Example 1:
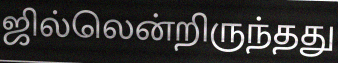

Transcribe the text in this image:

ஜில்லென்றிருந்தது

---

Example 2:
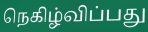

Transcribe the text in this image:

நெகிழ்விப்பது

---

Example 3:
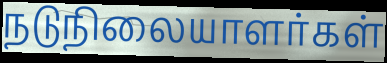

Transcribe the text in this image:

நடுநிலையாளர்கள்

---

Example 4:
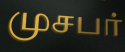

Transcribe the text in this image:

முசபர்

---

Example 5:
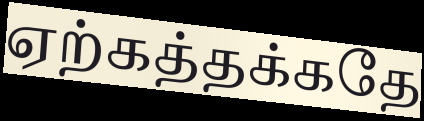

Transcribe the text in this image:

ஏற்கத்தக்கதே